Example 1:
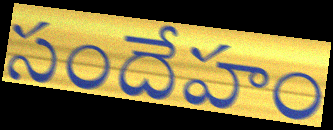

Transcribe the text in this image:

సందేహం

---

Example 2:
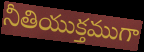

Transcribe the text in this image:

నీతియుక్తముగా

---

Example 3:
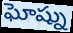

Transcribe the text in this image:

ఘోష్ను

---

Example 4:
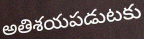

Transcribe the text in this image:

అతిశయపడుటకు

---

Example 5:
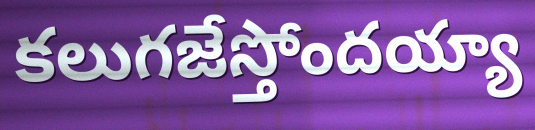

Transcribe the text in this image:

కలుగజేస్తోందయ్యా